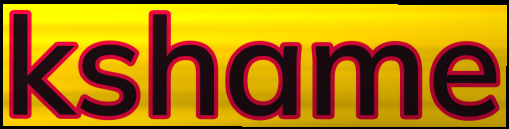
kshame